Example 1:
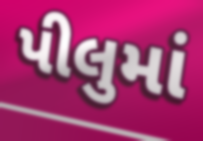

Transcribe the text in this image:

પીલુમાં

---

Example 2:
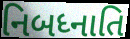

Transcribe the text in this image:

નિબધ્નાતિ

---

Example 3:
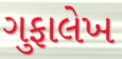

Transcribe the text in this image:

ગુફાલેખ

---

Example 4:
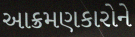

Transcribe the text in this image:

આક્રમણકારોને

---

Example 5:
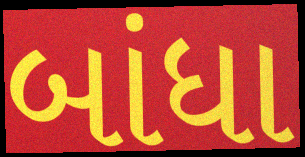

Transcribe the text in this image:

બાંધા